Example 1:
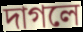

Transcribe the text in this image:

দাগলে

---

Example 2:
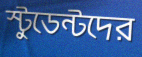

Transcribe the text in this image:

স্টুডেন্টদের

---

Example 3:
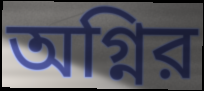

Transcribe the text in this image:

অগ্নির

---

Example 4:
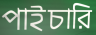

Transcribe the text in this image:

পাইচারি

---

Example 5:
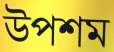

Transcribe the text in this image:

উপশম